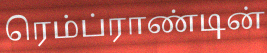
ரெம்ப்ராண்டின்